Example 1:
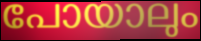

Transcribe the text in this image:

പോയാലും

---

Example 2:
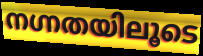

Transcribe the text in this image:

നഗ്നതയിലൂടെ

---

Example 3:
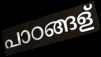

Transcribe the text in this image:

പാഠങ്ങള്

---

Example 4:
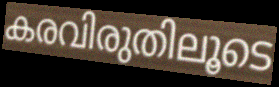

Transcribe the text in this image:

കരവിരുതിലൂടെ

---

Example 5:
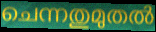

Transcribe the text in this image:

ചെന്നതുമുതൽ